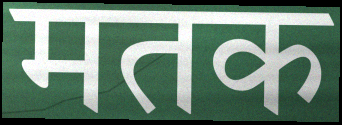
मतक